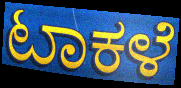
ಟಾಕಳೆ